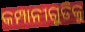
କମ୍ପାନୀଗୁଡିକୁ